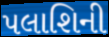
પલાશિની